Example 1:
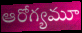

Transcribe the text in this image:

ఆరోగ్యమూ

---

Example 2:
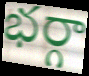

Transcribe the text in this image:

భర్గా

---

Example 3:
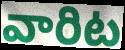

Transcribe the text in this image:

వారిట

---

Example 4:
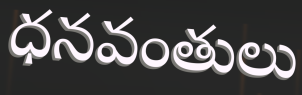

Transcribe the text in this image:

ధనవంతులు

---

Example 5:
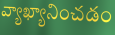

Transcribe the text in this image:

వ్యాఖ్యానించడం